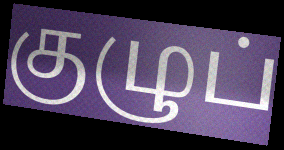
குழுப்